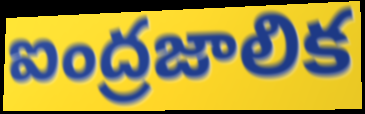
ఐంద్రజాలిక